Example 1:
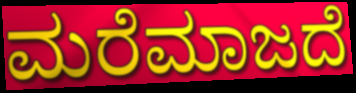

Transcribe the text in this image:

ಮರೆಮಾಜದೆ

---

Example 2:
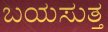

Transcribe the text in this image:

ಬಯಸುತ್ತ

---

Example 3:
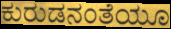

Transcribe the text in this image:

ಕುರುಡನಂತೆಯೂ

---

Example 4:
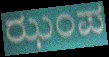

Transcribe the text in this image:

ಝಂಪ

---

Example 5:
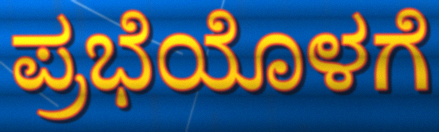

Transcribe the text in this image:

ಪ್ರಭೆಯೊಳಗೆ